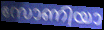
സോണിയാ